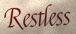
Restless